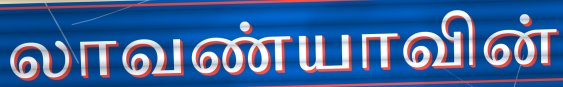
லாவண்யாவின்